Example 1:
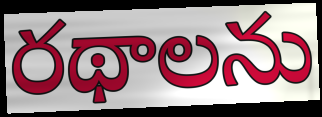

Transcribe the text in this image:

రథాలను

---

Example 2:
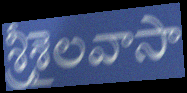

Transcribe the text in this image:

శ్రీశైలవాసా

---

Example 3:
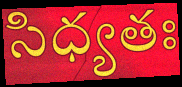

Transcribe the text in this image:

సిధ్యతః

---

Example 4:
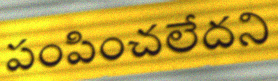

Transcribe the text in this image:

పంపించలేదని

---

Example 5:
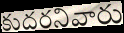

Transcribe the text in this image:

కుదరనివారు